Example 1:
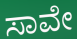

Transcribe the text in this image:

ಸಾವೇ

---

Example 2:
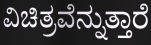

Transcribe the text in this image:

ವಿಚಿತ್ರವೆನ್ನುತ್ತಾರೆ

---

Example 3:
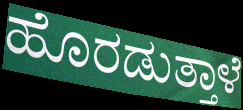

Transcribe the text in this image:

ಹೊರಡುತ್ತಾಳೆ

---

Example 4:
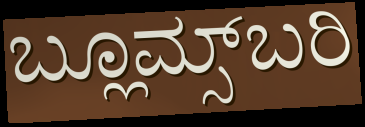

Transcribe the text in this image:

ಬ್ಲೂಮ್ಸ್‌ಬರಿ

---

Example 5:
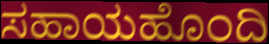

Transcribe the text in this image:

ಸಹಾಯಹೊಂದಿ